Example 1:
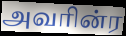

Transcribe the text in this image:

அவரின்ர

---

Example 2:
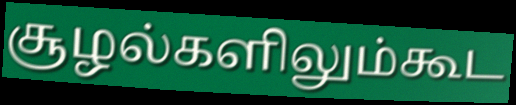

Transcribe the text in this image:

சூழல்களிலும்கூட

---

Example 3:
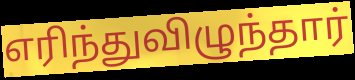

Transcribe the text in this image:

எரிந்துவிழுந்தார்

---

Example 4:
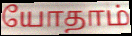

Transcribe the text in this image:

யோதாம்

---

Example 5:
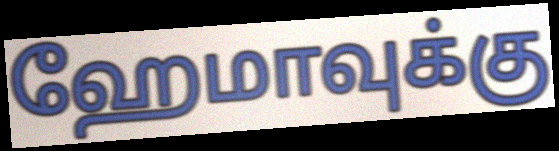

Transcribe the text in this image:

ஹேமாவுக்கு